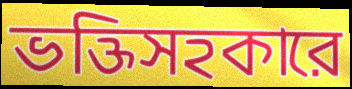
ভক্তিসহকারে